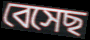
বেসেছ